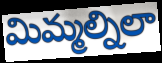
మిమ్మల్నిలా